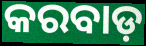
କରବାଡ଼